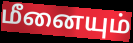
மீனையும்